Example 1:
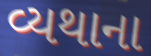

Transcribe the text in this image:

વ્યથાના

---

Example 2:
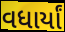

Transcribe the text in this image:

વધાર્યાં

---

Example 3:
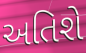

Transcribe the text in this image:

અતિશે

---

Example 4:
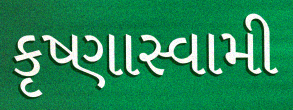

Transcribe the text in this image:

કૃષ્ણાસ્વામી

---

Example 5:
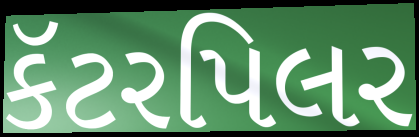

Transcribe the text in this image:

કૅટરપિલર